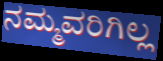
ನಮ್ಮವರಿಗಿಲ್ಲ